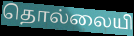
தொல்லையி